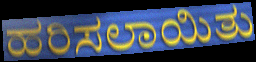
ಹರಿಸಲಾಯಿತು